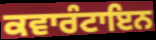
ਕਵਾਰੰਟਾਇਨ